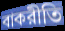
বাকরীতি